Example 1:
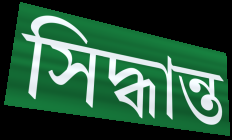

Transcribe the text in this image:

সিদ্ধান্ত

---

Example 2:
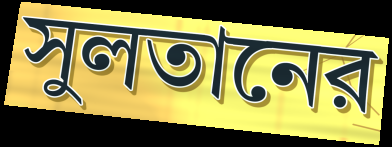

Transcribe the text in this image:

সুলতানের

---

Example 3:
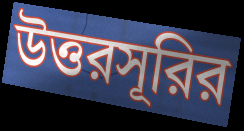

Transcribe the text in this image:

উত্তরসূরির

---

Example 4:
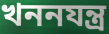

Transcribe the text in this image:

খননযন্ত্র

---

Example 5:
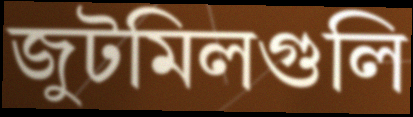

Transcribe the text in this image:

জুটমিলগুলি